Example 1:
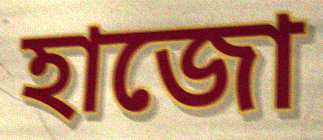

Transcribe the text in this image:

হাজো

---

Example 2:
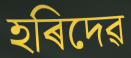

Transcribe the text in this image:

হৰিদেৱ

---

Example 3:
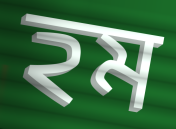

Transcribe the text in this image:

হম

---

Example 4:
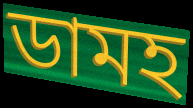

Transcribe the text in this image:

ডামহ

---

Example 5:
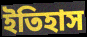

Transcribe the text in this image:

ইতিহাস